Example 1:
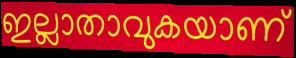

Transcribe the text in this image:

ഇല്ലാതാവുകയാണ്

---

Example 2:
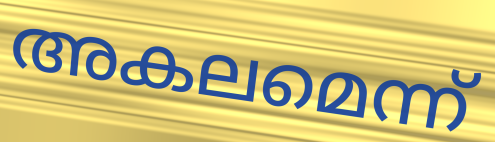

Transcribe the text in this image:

അകലമെന്ന്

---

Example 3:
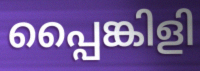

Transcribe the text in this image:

പ്പൈങ്കിളി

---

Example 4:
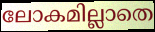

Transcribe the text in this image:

ലോകമില്ലാതെ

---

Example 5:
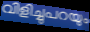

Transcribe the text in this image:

വിളിച്ചുപറയും